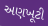
અણખૂટી